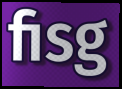
fisg